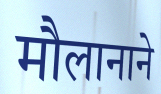
मौलानाने